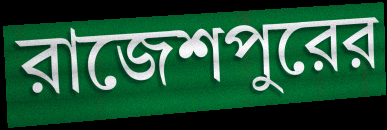
রাজেশপুরের